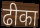
ढीका